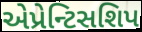
એપ્રેન્ટિસશિપ